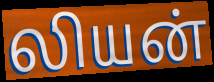
லியன்